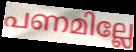
പണമില്ലേ